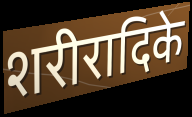
शरीरादिके